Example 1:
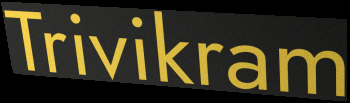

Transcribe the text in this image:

Trivikram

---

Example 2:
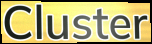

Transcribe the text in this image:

Cluster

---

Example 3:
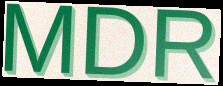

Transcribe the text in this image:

MDR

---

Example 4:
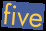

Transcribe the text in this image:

five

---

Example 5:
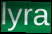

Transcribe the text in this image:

lyra